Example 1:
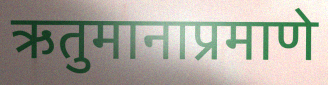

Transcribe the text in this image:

ऋतुमानाप्रमाणे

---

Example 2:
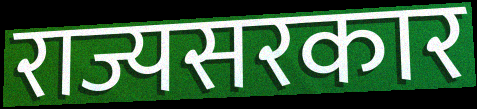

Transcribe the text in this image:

राज्यसरकार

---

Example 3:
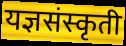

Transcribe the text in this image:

यज्ञसंस्कृती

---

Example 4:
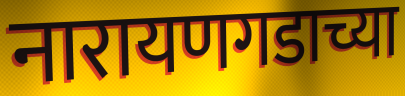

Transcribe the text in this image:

नारायणगडाच्या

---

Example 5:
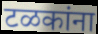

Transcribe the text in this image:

टळकांना